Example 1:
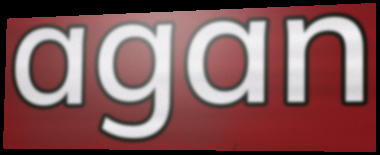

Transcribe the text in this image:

agan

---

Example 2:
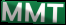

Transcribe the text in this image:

MMT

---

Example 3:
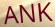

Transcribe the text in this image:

ANK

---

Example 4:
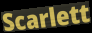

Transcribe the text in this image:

Scarlett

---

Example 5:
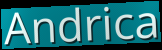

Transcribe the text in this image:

Andrica